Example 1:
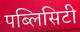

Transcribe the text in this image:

पब्लिसिटी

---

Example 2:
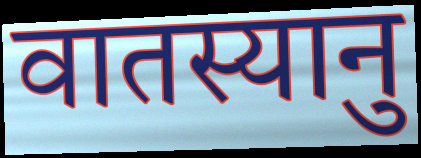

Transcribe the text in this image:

वातस्यानु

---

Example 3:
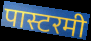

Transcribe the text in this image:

पास्टरमी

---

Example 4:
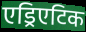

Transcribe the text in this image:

एड्रिएटिक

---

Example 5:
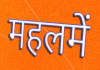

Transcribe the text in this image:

महलमें